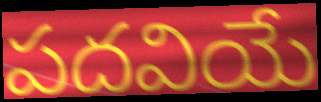
పదవియే